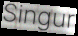
Singur